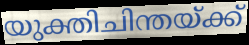
യുക്തിചിന്തയ്ക്ക്